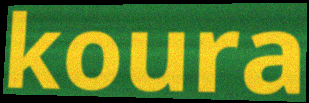
koura